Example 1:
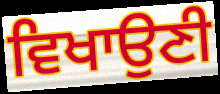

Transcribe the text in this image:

ਵਿਖਾਉਣੀ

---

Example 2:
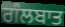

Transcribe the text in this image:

ਗੰਲਬਾਤ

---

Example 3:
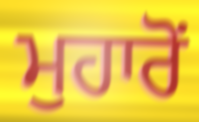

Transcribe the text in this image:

ਮੁਹਾਰੋਂ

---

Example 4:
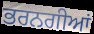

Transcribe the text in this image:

ਭਰਨਗੀਆਂ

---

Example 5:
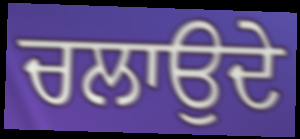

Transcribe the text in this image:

ਚਲਾਉਦੇ